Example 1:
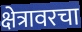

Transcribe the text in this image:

क्षेत्रावरचा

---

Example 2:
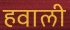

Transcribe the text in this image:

हवाली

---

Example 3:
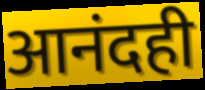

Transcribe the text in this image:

आनंदही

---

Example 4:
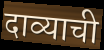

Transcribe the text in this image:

दाव्याची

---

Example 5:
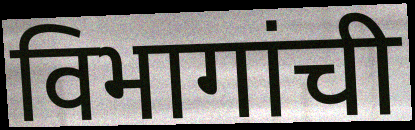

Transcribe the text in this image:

विभागांची